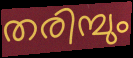
തരിമ്പും